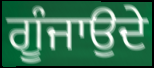
ਗੂੰਜਾਉਦੇ